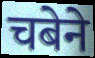
चबेने